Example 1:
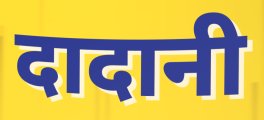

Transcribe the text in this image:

दादानी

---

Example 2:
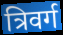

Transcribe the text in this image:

त्रिवर्ग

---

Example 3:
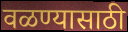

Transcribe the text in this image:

वळण्यासाठी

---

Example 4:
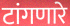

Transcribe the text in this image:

टांगणारे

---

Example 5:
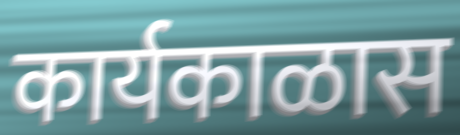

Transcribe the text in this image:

कार्यकाळास